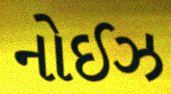
નોઈઝ